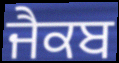
ਜੈਕਬ